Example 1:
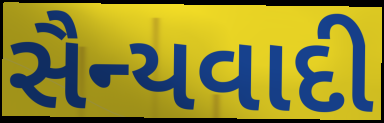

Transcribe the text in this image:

સૈન્યવાદી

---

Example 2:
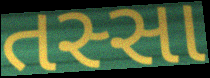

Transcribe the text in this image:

તસ્સા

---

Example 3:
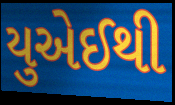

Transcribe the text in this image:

યુએઈથી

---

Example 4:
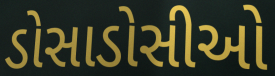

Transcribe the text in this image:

ડોસાડોસીઓ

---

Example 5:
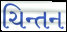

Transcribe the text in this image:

ચિન્તન